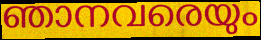
ഞാനവരെയും